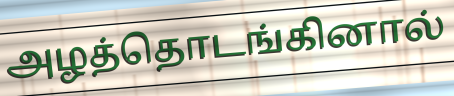
அழத்தொடங்கினால்